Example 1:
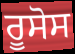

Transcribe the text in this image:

ਰੂਸੋਸ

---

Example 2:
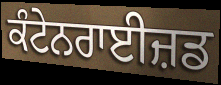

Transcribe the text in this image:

ਕੰਟੇਨਰਾਈਜ਼ਡ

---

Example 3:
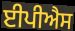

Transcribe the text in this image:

ਈਪੀਐਸ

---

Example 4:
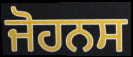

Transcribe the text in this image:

ਜੋਹਨਸ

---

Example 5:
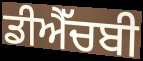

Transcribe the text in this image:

ਡੀਐੱਚਬੀ